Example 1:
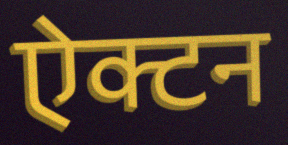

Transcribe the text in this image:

ऐक्टन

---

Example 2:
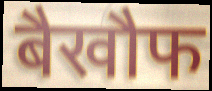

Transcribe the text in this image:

बैखौफ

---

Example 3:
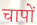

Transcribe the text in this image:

चापों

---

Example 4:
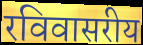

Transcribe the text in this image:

रविवासरीय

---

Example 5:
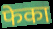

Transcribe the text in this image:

फेका